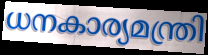
ധനകാര്യമന്ത്രി